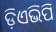
ଡ଼ିଏଭିପି